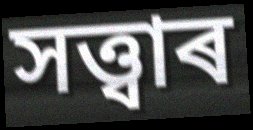
সত্ত্বাৰ